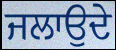
ਜਲਾਉਦੇ